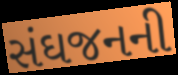
સંઘજનની